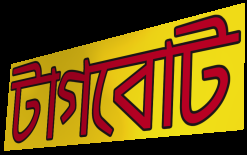
টাগবোট